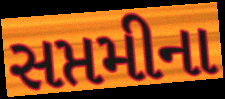
સપ્તમીના